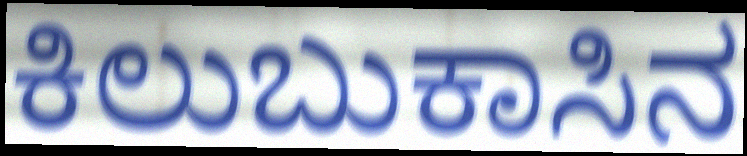
ಕಿಲುಬುಕಾಸಿನ